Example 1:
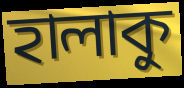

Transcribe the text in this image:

হালাকু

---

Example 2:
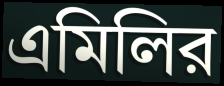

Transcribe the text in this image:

এমিলির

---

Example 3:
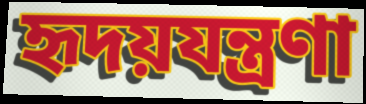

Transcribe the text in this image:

হৃদয়যন্ত্রণা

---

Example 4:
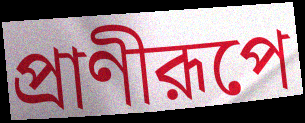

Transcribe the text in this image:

প্রাণীরূপে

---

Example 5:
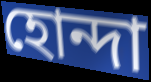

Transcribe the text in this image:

হোন্দা